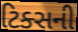
ટિક્સની